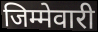
जिम्मेवारी